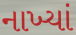
નાખ્યાં